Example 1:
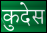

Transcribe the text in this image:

कुदेस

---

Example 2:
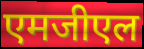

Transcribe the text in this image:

एमजीएल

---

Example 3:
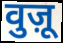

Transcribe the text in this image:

वुज़ू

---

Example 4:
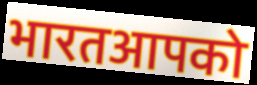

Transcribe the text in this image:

भारतआपको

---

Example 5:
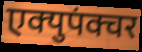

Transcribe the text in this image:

एक्युपंक्चर